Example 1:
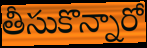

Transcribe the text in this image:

తీసుకొన్నారో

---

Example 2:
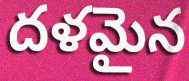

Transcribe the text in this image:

దళమైన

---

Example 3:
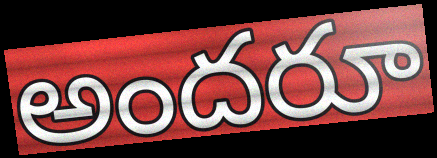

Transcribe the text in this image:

అందరూ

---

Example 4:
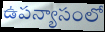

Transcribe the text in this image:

ఉపన్యాసంలో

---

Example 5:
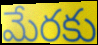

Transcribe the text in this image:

మేరకు